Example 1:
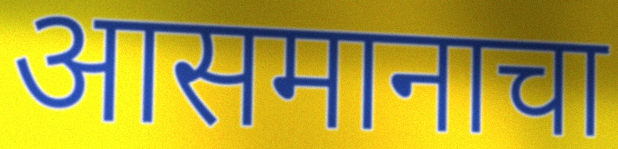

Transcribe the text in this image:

आसमानाचा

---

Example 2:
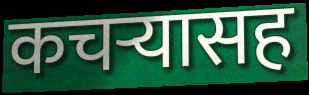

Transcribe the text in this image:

कचऱ्यासह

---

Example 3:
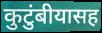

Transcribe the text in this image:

कुटुंबीयासह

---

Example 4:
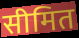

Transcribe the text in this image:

सीमित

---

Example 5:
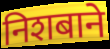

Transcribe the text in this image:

निशबाने